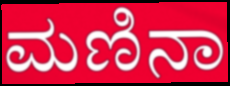
ಮಣಿನಾ